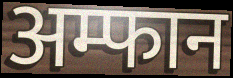
अम्‍फान